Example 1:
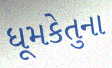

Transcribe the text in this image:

ધૂમકેતુના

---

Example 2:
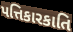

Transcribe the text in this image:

પત્તિકારકાતિ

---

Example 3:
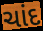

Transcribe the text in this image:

ચાંદ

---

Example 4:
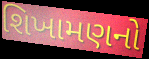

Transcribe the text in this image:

શિખામણનો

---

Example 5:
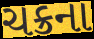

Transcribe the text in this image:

ચક્રના